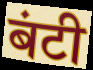
बंटी